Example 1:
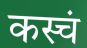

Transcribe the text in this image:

कस्चं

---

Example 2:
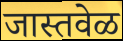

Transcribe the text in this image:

जास्तवेळ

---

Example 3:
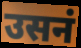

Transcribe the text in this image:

उसनं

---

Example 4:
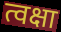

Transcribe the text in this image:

त्वक्षा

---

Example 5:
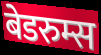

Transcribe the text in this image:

बेडरुम्स